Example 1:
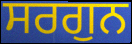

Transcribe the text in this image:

ਸਰਗੁਨ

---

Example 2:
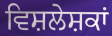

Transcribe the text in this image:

ਵਿਸ਼ਲੇਸ਼ਕਾਂ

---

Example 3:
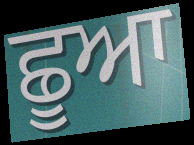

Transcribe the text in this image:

ਛੂਆ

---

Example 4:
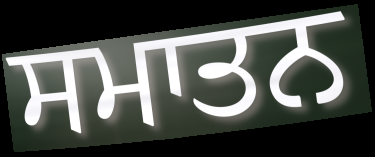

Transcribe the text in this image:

ਸਮਾਤਨ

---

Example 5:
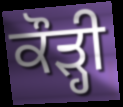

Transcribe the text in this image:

ਕੌੜ੍ਹੀ